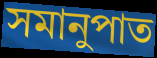
সমানুপাত